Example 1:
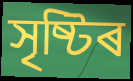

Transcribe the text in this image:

সৃষ্টিৰ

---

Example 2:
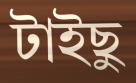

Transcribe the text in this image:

টাইছু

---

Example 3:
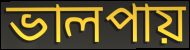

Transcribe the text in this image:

ভালপায়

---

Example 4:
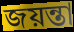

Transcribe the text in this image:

জয়ন্তা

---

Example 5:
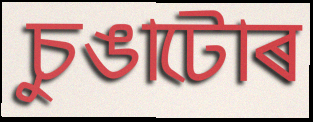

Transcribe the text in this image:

চুঙাটোৰ